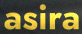
asira